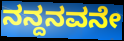
ನನ್ದನವನೇ